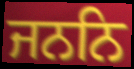
ਜਨਨਿ